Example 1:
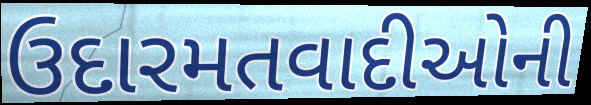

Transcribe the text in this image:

ઉદારમતવાદીઓની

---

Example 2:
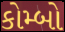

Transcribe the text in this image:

કોમ્બો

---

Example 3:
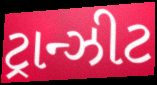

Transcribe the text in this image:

ટ્રાન્ઝીટ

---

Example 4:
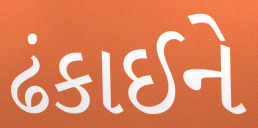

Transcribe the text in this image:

ઢંકાઈને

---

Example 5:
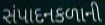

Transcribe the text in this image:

સંપાદનકળાની